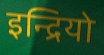
इन्द्रियो